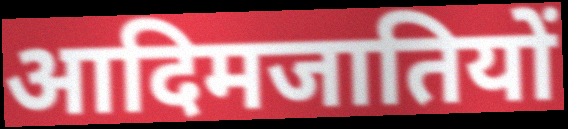
आदिमजातियों